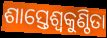
ଶାସ୍ତେଶ୍ବକୁଣ୍ଠିତା